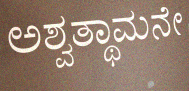
ಅಶ್ವತ್ಥಾಮನೇ